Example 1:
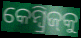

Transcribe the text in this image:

କେମ୍ୱ୍ରିଜ୍‌କୁ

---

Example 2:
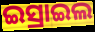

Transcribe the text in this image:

ଇସ୍ରାଇଲ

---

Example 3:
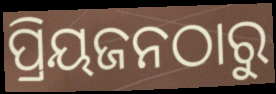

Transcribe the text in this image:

ପ୍ରିୟଜନଠାରୁ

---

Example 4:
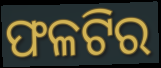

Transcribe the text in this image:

ଫଳଟିର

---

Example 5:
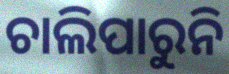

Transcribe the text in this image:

ଚାଲିପାରୁନି